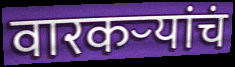
वारकऱ्यांचं